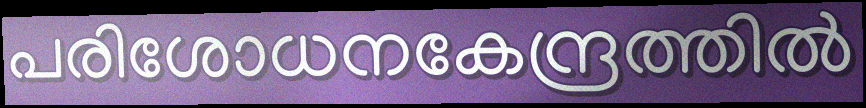
പരിശോധനകേന്ദ്രത്തിൽ